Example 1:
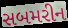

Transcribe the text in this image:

સબમરીન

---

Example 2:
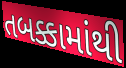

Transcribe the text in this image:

તબક્કામાંથી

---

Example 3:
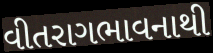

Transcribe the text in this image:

વીતરાગભાવનાથી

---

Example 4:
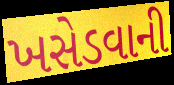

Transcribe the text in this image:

ખસેડવાની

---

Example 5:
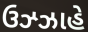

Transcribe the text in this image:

ઉઝ્ઝાહે